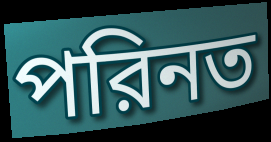
পরিনত